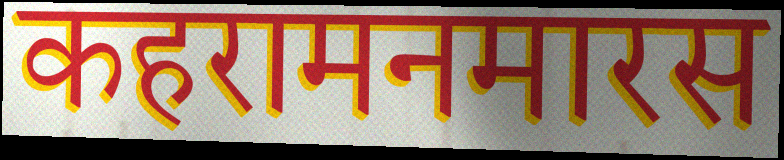
कहरामनमारस